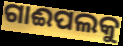
ଗାଈପଲକୁ